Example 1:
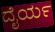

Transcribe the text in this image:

ದೈರ್ಯ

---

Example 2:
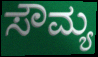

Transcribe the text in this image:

ಸೌಮ್ಯ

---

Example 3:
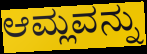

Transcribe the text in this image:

ಆಮ್ಲವನ್ನು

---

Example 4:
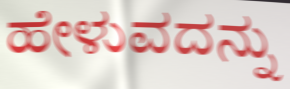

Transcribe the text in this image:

ಹೇಳುವದನ್ನು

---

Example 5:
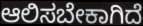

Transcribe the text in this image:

ಆಲಿಸಬೇಕಾಗಿದೆ